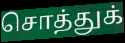
சொத்துக்